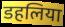
डहलिया